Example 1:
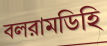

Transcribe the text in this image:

বলরামডিহি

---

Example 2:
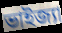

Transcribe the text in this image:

ভাইজ্যা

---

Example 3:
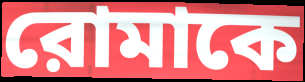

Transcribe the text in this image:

রোমাকে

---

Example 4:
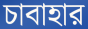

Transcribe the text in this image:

চাবাহার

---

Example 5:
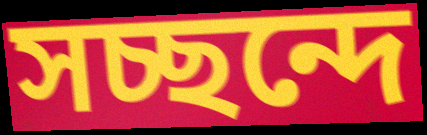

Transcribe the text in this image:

সচ্ছন্দে